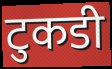
टुकडी